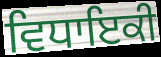
ਵਿਧਾਇਕੀ